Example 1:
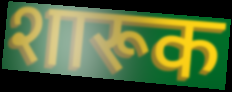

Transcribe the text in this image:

शारूक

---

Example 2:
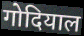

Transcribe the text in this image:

गोदियाल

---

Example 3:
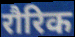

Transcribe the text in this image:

रौरिक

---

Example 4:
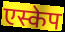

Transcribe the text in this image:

एस्केप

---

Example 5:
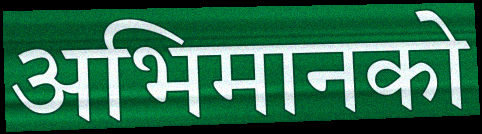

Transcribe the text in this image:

अभिमानको